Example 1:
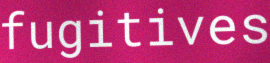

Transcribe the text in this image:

fugitives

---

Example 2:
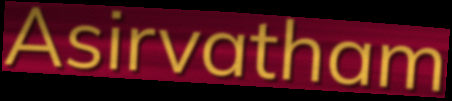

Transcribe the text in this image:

Asirvatham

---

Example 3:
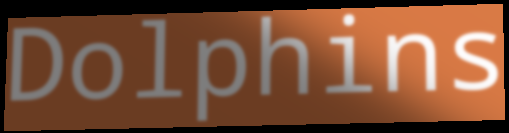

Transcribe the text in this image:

Dolphins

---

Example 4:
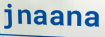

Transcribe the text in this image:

jnaana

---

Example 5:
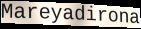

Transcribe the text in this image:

Mareyadirona